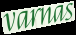
varnas